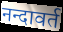
नन्दावर्त